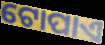
ଟୋପାଏ